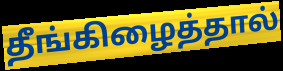
தீங்கிழைத்தால்